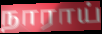
நாராய்